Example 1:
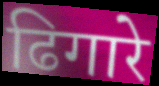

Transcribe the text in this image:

ढिगारे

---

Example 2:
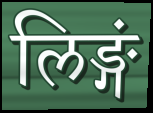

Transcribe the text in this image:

लिङ्गं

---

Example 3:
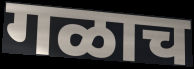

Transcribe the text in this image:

गळाच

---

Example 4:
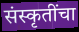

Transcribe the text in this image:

संस्कृतींचा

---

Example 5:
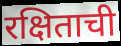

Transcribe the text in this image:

रक्षिताची